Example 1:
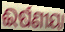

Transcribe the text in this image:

ଈର୍ଷଣୀୟା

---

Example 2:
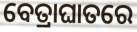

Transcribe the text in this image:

ବେତ୍ରାଘାତରେ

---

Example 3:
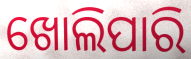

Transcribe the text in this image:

ଖୋଲିପାରି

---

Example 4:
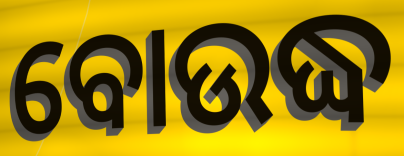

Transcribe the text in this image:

ବୋଉଦ୍ଧ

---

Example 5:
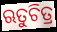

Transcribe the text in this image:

ଋତୁଚିତ୍ର